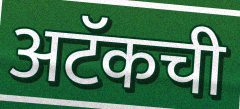
अटॅकची